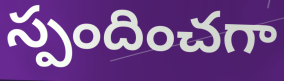
స్పందించగా